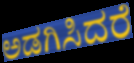
ಅಡಗಿಸಿದರೆ